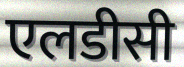
एलडीसी